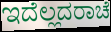
ಇದೆಲ್ಲದರಾಚೆ